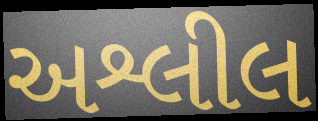
અશ્લીલ